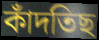
কাঁদতিছ